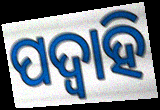
ପଦ୍ଵାହି